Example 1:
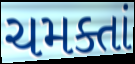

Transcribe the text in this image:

ચમક્તાં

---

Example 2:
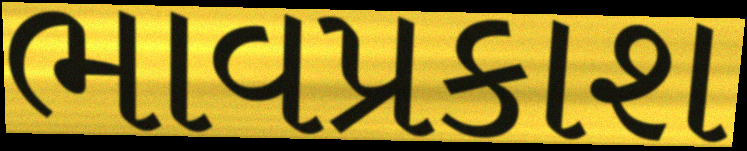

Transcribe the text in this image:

ભાવપ્રકાશ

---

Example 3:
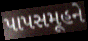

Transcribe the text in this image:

પાપસમૂહને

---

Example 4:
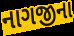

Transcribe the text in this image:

નાગજીના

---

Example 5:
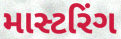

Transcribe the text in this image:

માસ્ટરિંગ